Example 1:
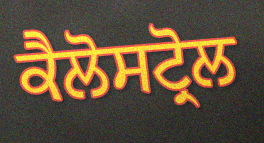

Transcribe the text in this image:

ਕੈਲੋਸਟ੍ਰੋਲ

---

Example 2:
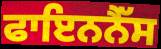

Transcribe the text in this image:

ਫਾਇਨਨੈੱਸ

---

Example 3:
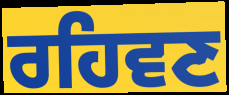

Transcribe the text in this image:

ਰਹਿਵਣ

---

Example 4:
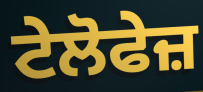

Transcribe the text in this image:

ਟੇਲੋਫੇਜ਼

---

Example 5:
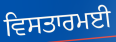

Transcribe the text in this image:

ਵਿਸਤਾਰਮਈ